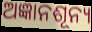
ଅଜ୍ଞାନଶୂନ୍ୟ